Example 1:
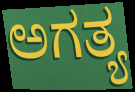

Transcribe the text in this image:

ಅಗತ್ಯ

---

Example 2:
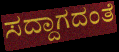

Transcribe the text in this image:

ಸದ್ದಾಗದಂತೆ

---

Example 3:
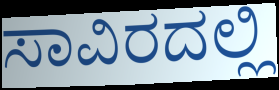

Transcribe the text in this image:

ಸಾವಿರದಲ್ಲಿ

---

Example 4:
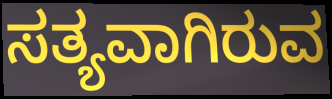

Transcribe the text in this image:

ಸತ್ಯವಾಗಿರುವ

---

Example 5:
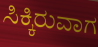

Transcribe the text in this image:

ಸಿಕ್ಕಿರುವಾಗ